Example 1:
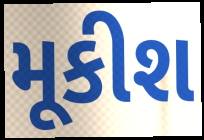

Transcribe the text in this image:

મૂકીશ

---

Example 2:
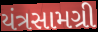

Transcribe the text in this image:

યંત્રસામગ્રી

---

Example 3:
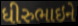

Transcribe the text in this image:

ધીરુભાઇને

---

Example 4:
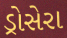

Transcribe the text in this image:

ડ્રોસેરા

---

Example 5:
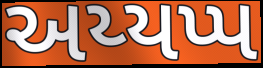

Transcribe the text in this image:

અય્યપ્પ